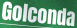
Golconda